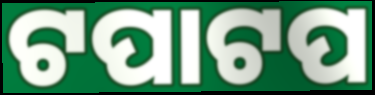
ଟପାଟପ